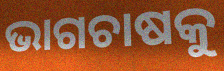
ଭାଗଚାଷକୁ